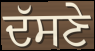
ਦੱਸਣੇ